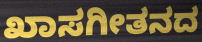
ಖಾಸಗೀತನದ